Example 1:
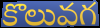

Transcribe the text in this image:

కొలువగ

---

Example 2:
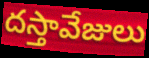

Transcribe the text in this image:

దస్తావేజులు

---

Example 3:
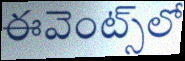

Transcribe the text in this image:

ఈవెంట్స్‌లో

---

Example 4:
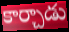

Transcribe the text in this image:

కార్చాడు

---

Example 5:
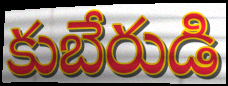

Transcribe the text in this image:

కుబేరుడి